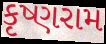
કૃષ્ણરામ